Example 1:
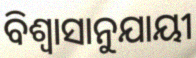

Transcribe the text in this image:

ବିଶ୍ୱାସାନୁଯାୟୀ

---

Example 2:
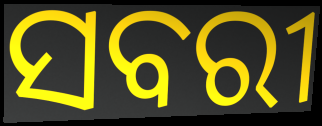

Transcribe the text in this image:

ସବରୀ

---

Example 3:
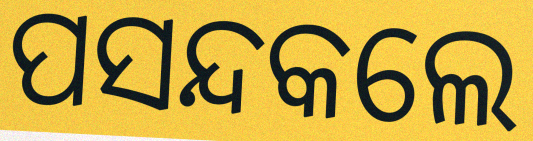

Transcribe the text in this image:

ପସନ୍ଦକଲେ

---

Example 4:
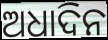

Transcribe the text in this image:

ଅଧାଦିନ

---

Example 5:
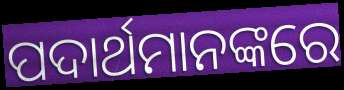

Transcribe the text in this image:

ପଦାର୍ଥମାନଙ୍କରେ